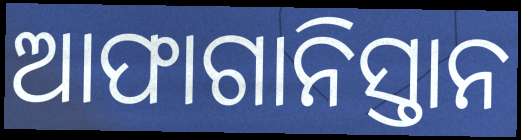
ଆଫାଗାନିସ୍ତାନ